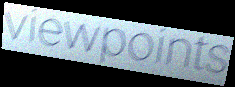
viewpoints